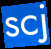
scj